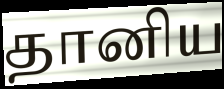
தானிய